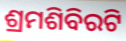
ଶ୍ରମଶିବିରଟି